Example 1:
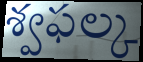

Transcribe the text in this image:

శ్వఫల్క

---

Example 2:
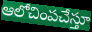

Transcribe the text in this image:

ఆలోచింపచేస్తూ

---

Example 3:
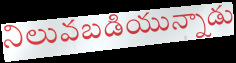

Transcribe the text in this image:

నిలువబడియున్నాడు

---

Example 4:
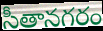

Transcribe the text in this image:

సీతానగరం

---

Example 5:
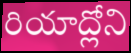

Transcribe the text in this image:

రియాద్లోని